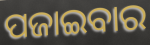
ପଜାଇବାର